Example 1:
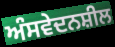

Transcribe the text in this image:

ਅੰਸਵੇਦਨਸ਼ੀਲ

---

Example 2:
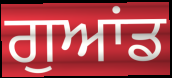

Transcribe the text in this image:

ਗੁਆਂਡ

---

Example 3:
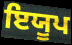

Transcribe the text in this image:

ਇਯੂਪ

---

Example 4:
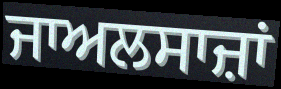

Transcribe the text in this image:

ਜਾਅਲਸਾਜ਼ਾਂ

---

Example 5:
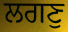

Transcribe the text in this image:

ਲਗਣੁ